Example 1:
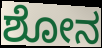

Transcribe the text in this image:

ಶೋನ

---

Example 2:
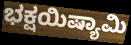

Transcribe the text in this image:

ಭಕ್ಷಯಿಷ್ಯಾಮಿ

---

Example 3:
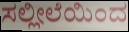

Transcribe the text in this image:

ಸಲ್ಲೀಲೆಯಿಂದ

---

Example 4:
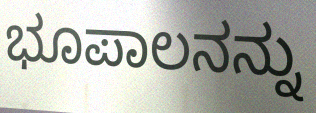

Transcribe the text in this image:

ಭೂಪಾಲನನ್ನು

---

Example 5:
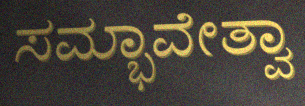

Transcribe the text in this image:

ಸಮ್ಭಾವೇತ್ವಾ